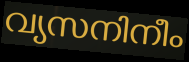
വ്യസനിനീം